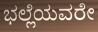
ಭಲ್ಲೆಯವರೇ